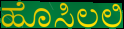
ಹೊಸಿಲಲಿ